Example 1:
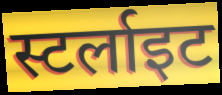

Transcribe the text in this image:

स्टर्लाइट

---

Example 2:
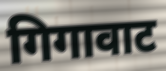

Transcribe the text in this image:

गिगावाट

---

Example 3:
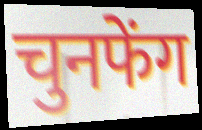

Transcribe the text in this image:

चुनफेंग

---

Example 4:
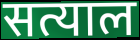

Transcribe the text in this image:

सत्याल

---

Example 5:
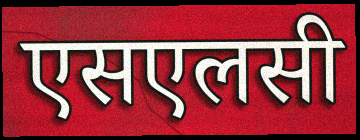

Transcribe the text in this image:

एसएलसी